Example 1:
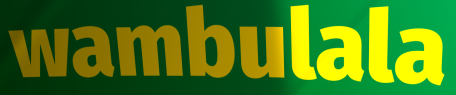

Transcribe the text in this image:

wambulala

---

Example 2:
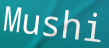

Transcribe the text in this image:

Mushi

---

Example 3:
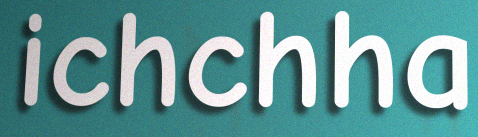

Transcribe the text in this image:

ichchha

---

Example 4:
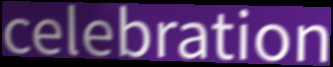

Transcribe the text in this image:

celebration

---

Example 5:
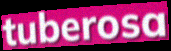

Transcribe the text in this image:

tuberosa